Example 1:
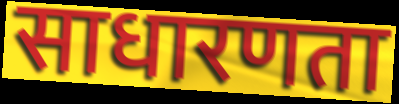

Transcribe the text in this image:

साधारणता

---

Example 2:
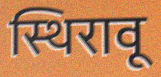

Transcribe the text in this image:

स्थिरावू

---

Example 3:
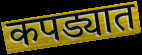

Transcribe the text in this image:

कपड्यात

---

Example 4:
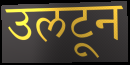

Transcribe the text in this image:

उलटून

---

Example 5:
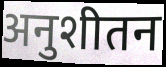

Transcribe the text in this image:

अनुशीतन